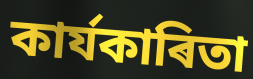
কাৰ্যকাৰিতা